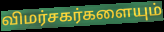
விமர்சகர்களையும்